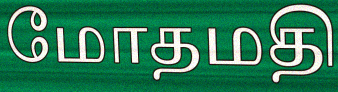
மோதமதி